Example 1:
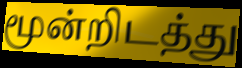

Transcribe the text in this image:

மூன்றிடத்து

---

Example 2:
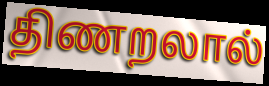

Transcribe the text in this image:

திணறலால்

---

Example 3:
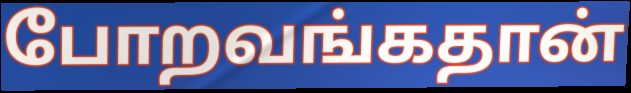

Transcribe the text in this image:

போறவங்கதான்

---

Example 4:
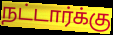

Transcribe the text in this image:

நட்டார்க்கு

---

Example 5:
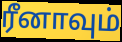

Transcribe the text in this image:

ரீனாவும்